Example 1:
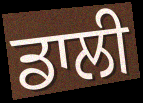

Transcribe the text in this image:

ਡਾਲੀ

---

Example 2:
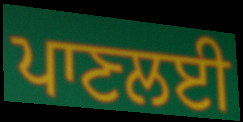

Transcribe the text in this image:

ਪਾਣਲਈ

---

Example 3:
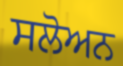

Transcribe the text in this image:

ਸਲੋਅਨ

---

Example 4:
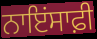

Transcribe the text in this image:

ਨਾਇਂਸਾਫ਼ੀ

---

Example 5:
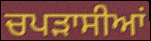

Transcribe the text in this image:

ਚਪੜਾਸੀਆਂ